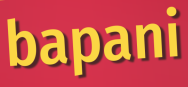
bapani